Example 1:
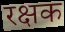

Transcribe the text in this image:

रक्षक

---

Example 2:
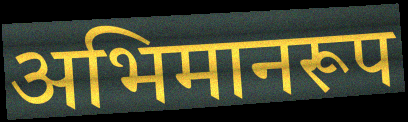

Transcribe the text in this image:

अभिमानरूप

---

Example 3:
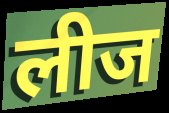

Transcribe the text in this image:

लीज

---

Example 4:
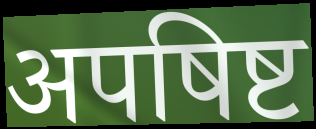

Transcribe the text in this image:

अपषिष्ट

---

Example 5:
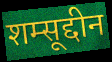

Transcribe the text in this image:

शम्सूद्दीन